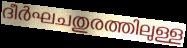
ദീർഘചതുരത്തിലുള്ള